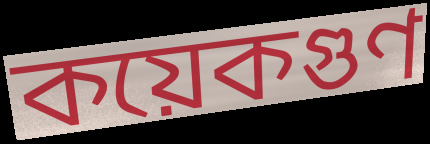
কয়েকগুণ